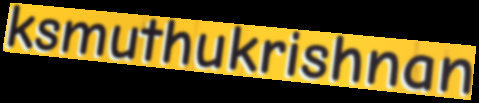
ksmuthukrishnan